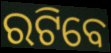
ରଟିବେ